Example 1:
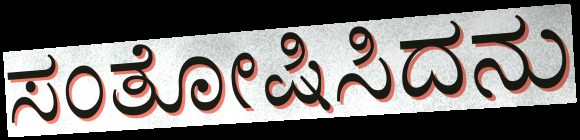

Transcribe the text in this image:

ಸಂತೋಷಿಸಿದನು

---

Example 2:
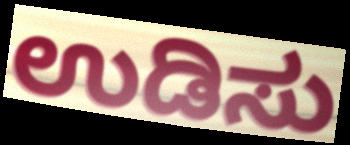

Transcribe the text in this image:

ಉಡಿಸು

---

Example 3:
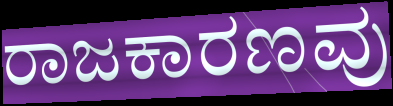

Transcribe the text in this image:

ರಾಜಕಾರಣವು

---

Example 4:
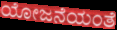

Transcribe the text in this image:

ಯೋಜನೆಯಂತೆ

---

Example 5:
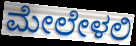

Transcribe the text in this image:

ಮೇಲೇಳಲಿ